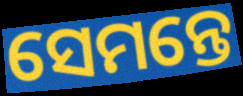
ସେମନ୍ତେ